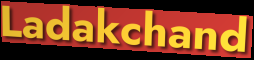
Ladakchand